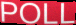
POLL